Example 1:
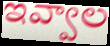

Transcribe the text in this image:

ఇవ్వాల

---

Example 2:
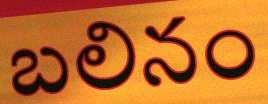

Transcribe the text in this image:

బలినం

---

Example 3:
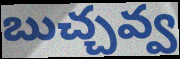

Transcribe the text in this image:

బుచ్చవ్వ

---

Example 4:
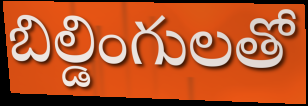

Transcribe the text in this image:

బిల్డింగులతో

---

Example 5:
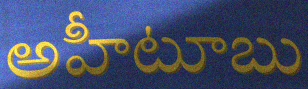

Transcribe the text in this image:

అహీటూబు